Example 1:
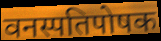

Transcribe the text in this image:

वनस्पतिपोषक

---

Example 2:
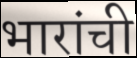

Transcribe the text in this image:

भारांची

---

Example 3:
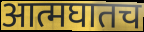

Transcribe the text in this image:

आत्मघातच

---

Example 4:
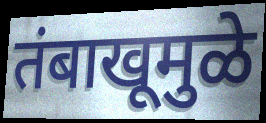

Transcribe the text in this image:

तंबाखूमुळे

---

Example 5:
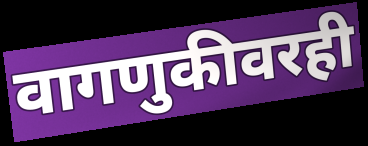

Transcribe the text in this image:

वागणुकीवरही